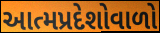
આત્મપ્રદેશોવાળો